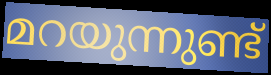
മറയുന്നുണ്ട്